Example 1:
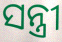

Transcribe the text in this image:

ସନ୍ତ୍ରୀ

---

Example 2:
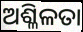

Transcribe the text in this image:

ଅଶ୍ଳିଳତା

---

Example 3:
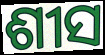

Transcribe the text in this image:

ଶୀସ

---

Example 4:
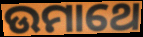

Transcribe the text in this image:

ଉମାଥେ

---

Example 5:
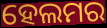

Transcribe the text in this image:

ହେଲମର